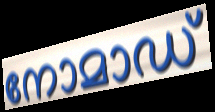
നോമാഡ്